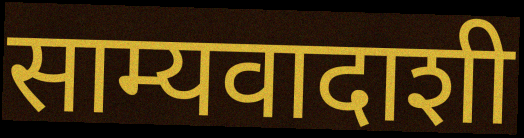
साम्यवादाशी